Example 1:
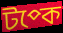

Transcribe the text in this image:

টপ্কে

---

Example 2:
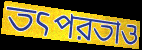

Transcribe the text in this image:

তৎপরতাও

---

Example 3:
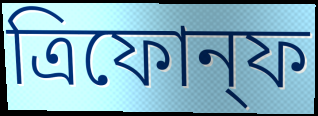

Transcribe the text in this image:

ত্রিফোন্ফ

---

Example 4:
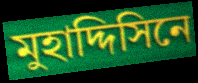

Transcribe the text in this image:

মুহাদ্দিসিনে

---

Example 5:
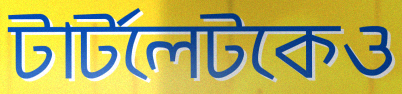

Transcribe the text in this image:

টার্টলেটকেও